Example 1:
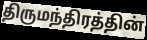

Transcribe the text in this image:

திருமந்திரத்தின்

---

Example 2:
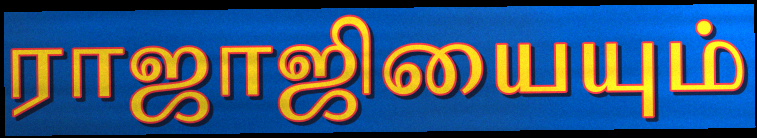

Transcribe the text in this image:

ராஜாஜியையும்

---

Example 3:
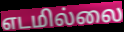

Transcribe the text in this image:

எடமில்லை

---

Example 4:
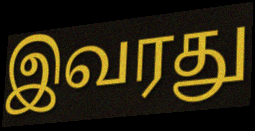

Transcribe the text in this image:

இவரது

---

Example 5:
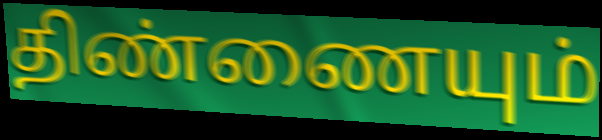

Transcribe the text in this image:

திண்ணையும்